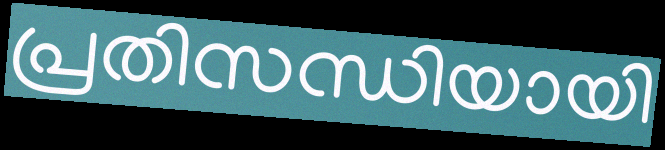
പ്രതിസന്ധിയായി